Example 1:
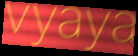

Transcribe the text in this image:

vyaya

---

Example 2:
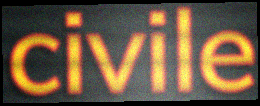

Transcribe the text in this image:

civile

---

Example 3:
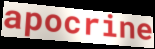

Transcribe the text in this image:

apocrine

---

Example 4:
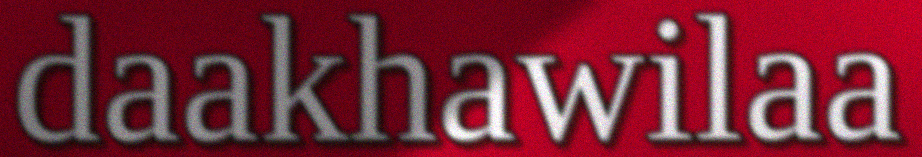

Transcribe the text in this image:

daakhawilaa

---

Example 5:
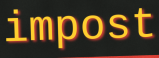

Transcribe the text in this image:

impost